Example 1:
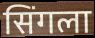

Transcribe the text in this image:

सिंगला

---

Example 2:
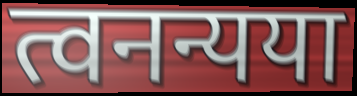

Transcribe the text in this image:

त्वनन्यया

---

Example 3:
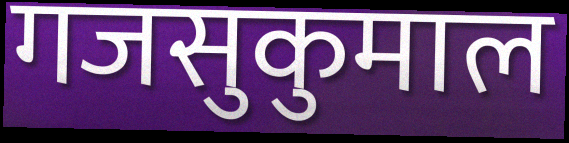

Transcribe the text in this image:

गजसुकुमाल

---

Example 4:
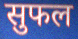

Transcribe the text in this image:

सुफल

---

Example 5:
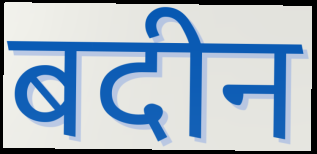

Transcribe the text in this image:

बदीन